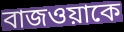
বাজওয়াকে